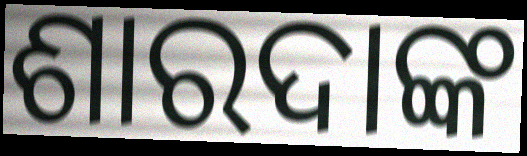
ଶାରଦାଙ୍କ